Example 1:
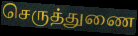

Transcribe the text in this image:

செருத்துணை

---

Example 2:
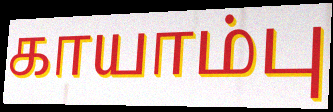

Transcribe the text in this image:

காயாம்பு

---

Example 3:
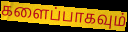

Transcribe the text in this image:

களைப்பாகவும்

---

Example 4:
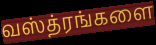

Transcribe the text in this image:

வஸ்த்ரங்களை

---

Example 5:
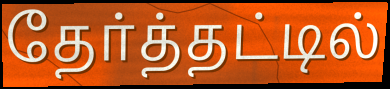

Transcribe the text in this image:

தேர்த்தட்டில்